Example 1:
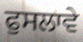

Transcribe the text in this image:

ਫੁਸਲਾਵੇ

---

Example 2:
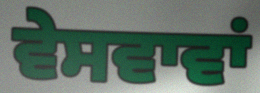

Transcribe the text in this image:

ਵੇਸਵਾਵਾਂ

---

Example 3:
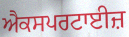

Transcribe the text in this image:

ਐਕਸਪਰਟਾਈਜ਼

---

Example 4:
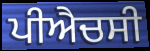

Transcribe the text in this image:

ਪੀਐਚਸੀ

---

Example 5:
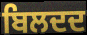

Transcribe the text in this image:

ਬਿਲਦਦ